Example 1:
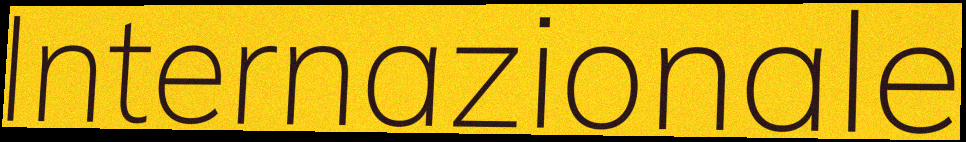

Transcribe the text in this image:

Internazionale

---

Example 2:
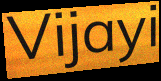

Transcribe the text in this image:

Vijayi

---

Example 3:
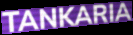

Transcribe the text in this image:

TANKARIA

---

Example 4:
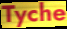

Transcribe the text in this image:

Tyche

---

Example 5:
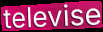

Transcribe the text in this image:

televise